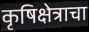
कृषिक्षेत्राचा